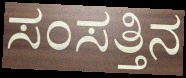
ಸಂಸತ್ತಿನ